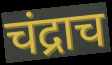
चंद्राच